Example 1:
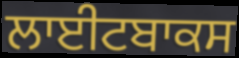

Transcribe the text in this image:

ਲਾਈਟਬਾਕਸ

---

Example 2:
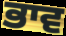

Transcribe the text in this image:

ਭਾਵ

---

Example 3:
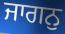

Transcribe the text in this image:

ਜਾਗਨੁ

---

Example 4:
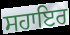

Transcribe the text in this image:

ਸਹਾਇਰ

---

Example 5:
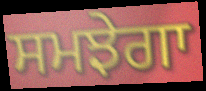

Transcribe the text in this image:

ਸਮਝੇਗਾ